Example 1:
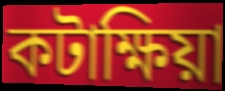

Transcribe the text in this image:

কটাক্ষিয়া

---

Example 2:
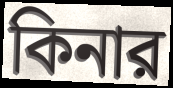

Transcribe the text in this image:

কিনার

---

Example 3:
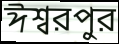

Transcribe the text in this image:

ঈশ্বরপুর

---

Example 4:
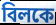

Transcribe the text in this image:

বিলকে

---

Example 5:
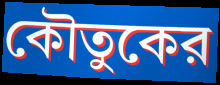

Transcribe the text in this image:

কৌতুকের